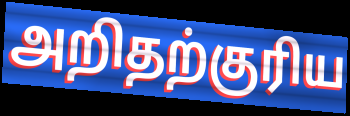
அறிதற்குரிய